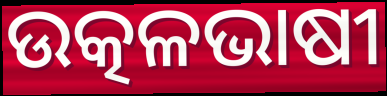
ଉତ୍କଳଭାଷୀ